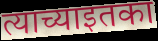
त्याच्याइतका